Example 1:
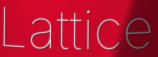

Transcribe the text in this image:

Lattice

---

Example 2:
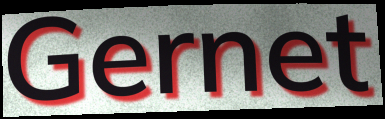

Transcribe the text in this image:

Gernet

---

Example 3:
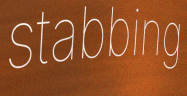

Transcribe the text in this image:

stabbing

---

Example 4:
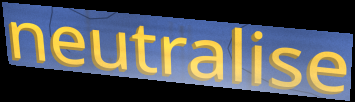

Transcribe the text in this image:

neutralise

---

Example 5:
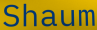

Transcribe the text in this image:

Shaum